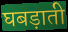
घबड़ाती